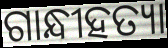
ଗାନ୍ଧୀହତ୍ୟା